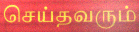
செய்தவரும்